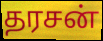
தரசன்